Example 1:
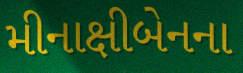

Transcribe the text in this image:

મીનાક્ષીબેનના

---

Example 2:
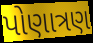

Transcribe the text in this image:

પોણાત્રણ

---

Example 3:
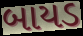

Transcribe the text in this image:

બાયડ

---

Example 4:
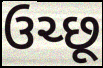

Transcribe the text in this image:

ઉચ્છૂ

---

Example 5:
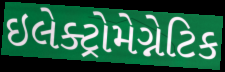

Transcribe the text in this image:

ઇલેક્ટ્રોમેગ્નેટિક